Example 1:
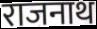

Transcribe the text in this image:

राजनाथ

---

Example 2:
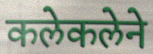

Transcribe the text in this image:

कलेकलेने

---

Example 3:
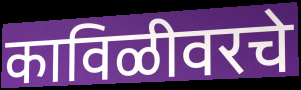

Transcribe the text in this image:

काविळीवरचे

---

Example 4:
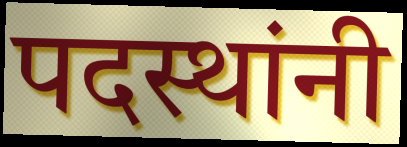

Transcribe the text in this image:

पदस्थांनी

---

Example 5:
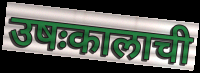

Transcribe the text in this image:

उषःकालाची